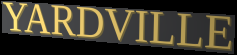
YARDVILLE